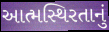
આત્મસ્થિરતાનું